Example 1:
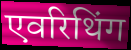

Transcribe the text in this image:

एवरिथिंग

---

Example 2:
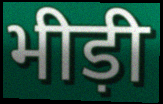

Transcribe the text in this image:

भीड़ी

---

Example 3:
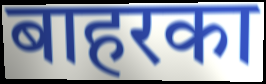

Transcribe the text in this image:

बाहरका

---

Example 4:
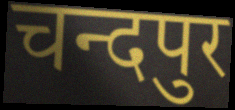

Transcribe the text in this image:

चन्दपुर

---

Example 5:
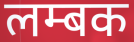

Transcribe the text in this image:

लम्बक